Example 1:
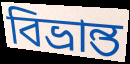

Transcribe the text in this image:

বিভ্রান্ত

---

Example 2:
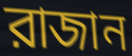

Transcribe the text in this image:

রাজান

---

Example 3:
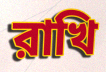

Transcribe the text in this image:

রাখি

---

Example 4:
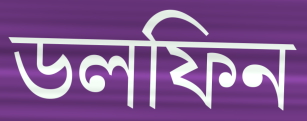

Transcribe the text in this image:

ডলফিন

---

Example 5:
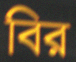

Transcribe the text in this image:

বির